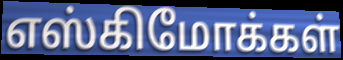
எஸ்கிமோக்கள்